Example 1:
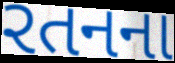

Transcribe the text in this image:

રતનના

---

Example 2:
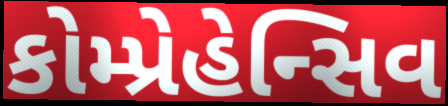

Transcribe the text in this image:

કોમ્પ્રેહેન્સિવ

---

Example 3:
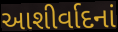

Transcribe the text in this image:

આશીર્વાદનાં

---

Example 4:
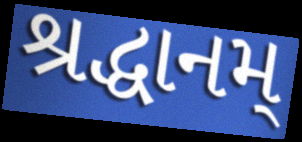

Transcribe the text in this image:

શ્રદ્ધાનમ્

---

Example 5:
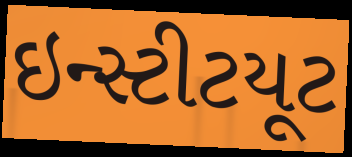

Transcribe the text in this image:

ઇન્સ્ટીટયૂટ